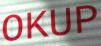
OKUP